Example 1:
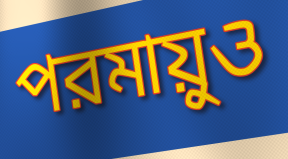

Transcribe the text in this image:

পরমায়ুও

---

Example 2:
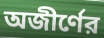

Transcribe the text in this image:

অজীর্ণের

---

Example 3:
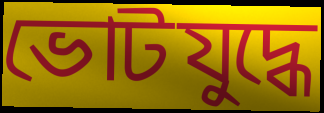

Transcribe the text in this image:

ভোটযুদ্ধে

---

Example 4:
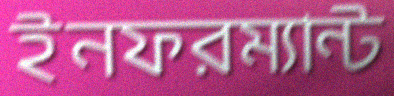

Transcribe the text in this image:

ইনফরম্যান্ট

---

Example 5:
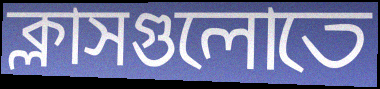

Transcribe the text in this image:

ক্লাসগুলোতে